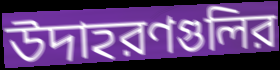
উদাহরণগুলির